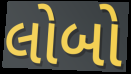
લોબો